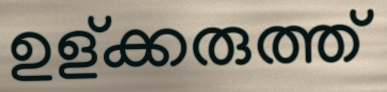
ഉള്ക്കരുത്ത്